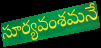
సూర్యవంశమనే